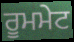
ਰੂਮਮੇਟ